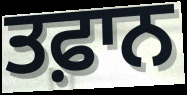
ਤਫ਼ਾਨ